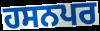
ਹਸਨਪਰ